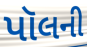
પૉલની